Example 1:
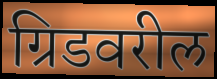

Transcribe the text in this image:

ग्रिडवरील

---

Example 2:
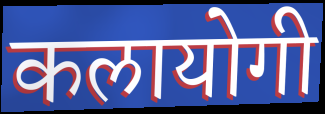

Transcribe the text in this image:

कलायोगी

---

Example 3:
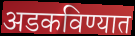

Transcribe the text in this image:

अडकविण्यात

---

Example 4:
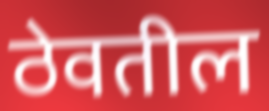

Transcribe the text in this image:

ठेवतील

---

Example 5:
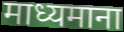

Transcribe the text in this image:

माध्यमाना